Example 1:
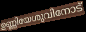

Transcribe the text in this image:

ഉണ്ണിയേശുവിനോട്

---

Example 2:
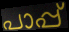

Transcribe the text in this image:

പാപ്പ്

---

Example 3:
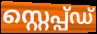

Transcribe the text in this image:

സ്റ്റെപ്പ്ഡ്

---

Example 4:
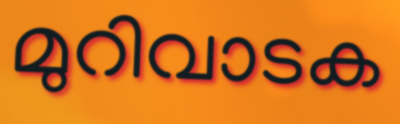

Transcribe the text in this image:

മുറിവാടക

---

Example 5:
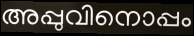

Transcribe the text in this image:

അപ്പുവിനൊപ്പം